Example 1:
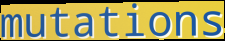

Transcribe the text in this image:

mutations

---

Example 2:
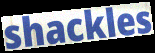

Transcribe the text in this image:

shackles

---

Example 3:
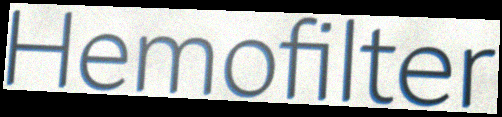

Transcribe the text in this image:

Hemofilter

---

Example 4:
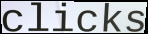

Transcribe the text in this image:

clicks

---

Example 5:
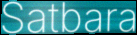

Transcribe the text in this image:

Satbara